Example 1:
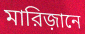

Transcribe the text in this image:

মারিজ়ানে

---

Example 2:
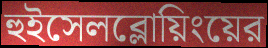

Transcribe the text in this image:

হুইসেলব্লোয়িংয়ের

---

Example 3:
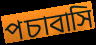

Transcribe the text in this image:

পচাবাসি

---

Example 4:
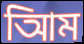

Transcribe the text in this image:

আিম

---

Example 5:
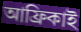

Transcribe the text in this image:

আফ্রিকাই